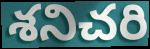
శనిచరి